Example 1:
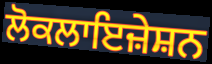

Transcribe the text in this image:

ਲੋਕਲਾਇਜ਼ੇਸ਼ਨ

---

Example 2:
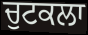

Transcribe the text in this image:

ਚੁਟਕਲਾ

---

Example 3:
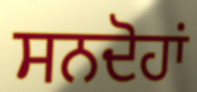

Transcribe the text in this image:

ਸਨਦੋਹਾਂ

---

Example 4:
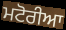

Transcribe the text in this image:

ਮਟੋਰੀਆ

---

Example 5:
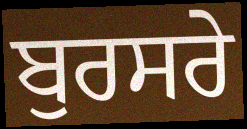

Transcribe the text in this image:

ਬੁਰਸਰੇ